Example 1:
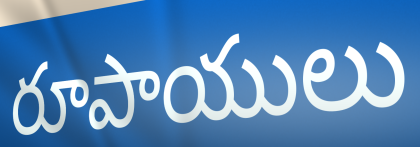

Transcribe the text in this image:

రూపాయులు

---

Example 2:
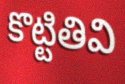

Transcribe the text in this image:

కొట్టితివి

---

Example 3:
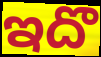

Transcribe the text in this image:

ఇదొ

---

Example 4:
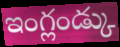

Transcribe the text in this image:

ఇంగ్లండ్కు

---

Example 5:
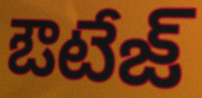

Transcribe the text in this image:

ఔటేజ్